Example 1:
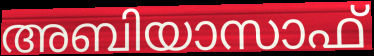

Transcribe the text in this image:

അബിയാസാഫ്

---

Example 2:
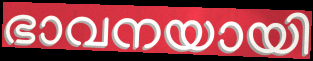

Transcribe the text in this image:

ഭാവനയായി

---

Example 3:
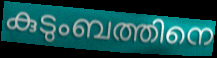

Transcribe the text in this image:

കുടുംബത്തിനെ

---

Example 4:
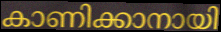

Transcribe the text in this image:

കാണിക്കാനായി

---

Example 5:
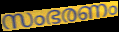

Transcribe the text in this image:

സംഭരണം